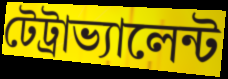
টেট্রাভ্যালেন্ট